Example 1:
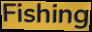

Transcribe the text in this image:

Fishing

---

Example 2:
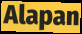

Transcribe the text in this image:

Alapan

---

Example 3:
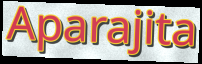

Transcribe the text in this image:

Aparajita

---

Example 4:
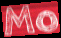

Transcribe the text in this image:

Mo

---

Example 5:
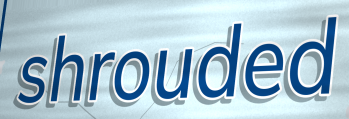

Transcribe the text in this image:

shrouded